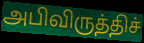
அபிவிருத்திச்